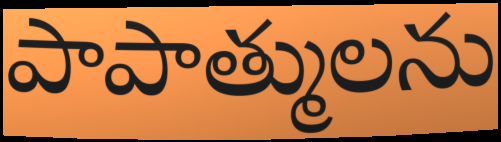
పాపాత్ములను